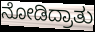
ನೋಡಿದ್ರಾತು